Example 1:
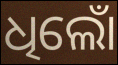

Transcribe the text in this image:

ଧିଲୋଁ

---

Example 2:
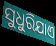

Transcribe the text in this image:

ସୁଧୁରିଯାଏ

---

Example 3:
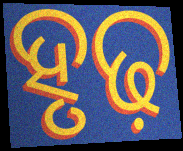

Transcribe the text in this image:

ହୃଢ଼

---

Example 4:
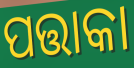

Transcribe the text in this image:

ପତ୍ତାକା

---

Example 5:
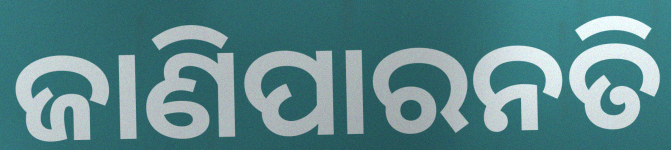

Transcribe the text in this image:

ଜାଣିପାରନତି